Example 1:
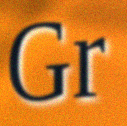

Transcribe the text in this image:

Gr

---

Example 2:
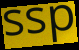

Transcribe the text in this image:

ssp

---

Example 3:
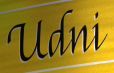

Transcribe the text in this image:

Udni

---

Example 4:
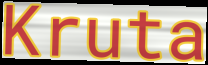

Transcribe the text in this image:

Kruta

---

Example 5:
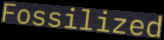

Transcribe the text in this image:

Fossilized